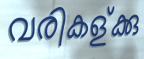
വരികള്ക്കു